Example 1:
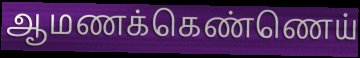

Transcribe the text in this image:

ஆமணக்கெண்ணெய்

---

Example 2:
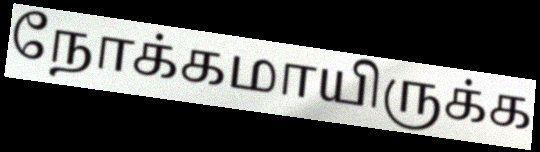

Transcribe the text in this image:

நோக்கமாயிருக்க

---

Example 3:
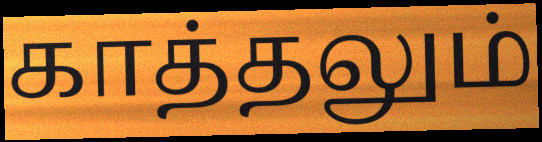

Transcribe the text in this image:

காத்தலும்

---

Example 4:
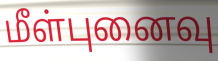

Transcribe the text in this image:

மீள்புனைவு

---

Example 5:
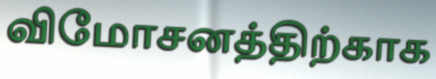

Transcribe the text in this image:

விமோசனத்திற்காக